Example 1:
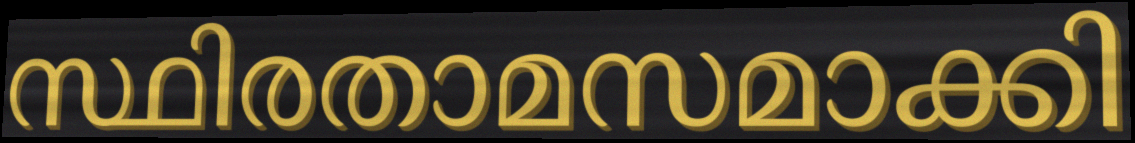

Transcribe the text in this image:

സ്ഥിരതാമസമാക്കി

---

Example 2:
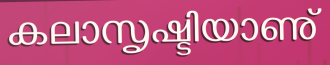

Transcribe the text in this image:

കലാസൃഷ്ടിയാണു്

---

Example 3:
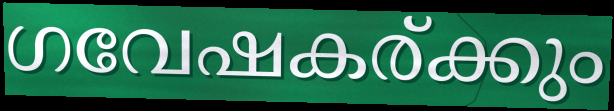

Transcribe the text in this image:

ഗവേഷകര്ക്കും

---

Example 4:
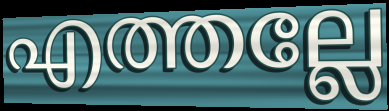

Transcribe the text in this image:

എത്തല്ലേ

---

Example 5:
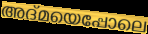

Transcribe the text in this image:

അദ്മയെപ്പോലെ